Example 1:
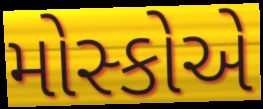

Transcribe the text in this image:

મોસ્કોએ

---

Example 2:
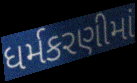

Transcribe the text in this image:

ધર્મકરણીમાં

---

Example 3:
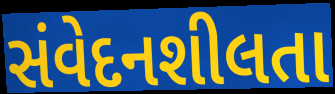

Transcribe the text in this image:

સંવેદનશીલતા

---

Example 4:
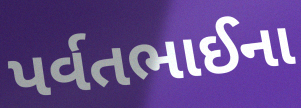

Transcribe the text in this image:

પર્વતભાઈના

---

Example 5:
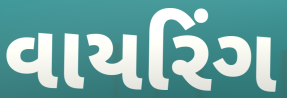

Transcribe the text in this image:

વાયરિંગ